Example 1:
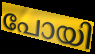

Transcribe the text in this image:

പോയി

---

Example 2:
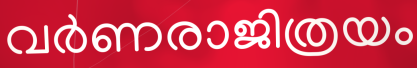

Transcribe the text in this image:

വർണരാജിത്രയം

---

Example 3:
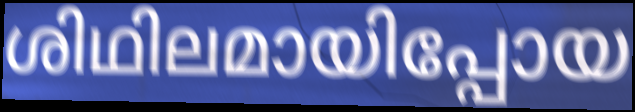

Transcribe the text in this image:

ശിഥിലമായിപ്പോയ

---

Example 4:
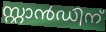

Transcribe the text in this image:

സ്റ്റാൻഡിന്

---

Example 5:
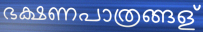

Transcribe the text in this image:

ഭക്ഷണപാത്രങ്ങള്